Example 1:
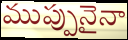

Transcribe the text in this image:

ముప్పునైనా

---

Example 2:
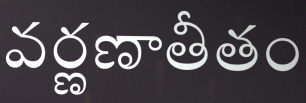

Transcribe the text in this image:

వర్ణణాతీతం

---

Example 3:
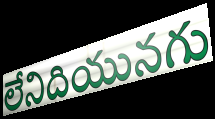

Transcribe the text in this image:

లేనిదియునగు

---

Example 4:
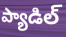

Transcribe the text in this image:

ప్యాడిల్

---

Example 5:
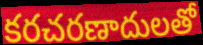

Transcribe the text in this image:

కరచరణాదులతో